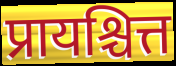
प्रायश्चित्त